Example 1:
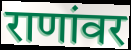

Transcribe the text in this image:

राणांवर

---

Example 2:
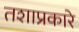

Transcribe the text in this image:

तशाप्रकारे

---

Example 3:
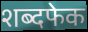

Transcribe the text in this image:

शब्दफेक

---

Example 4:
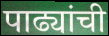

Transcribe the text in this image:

पाढ्यांची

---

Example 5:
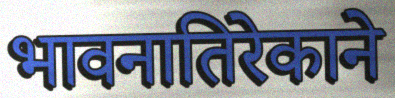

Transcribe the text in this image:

भावनातिरेकाने